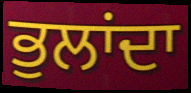
ਭੁਲਾਂਦਾ